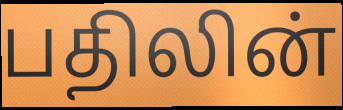
பதிலின்